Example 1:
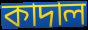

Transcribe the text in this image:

কাদাল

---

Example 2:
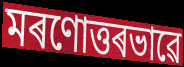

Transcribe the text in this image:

মৰণোত্তৰভাৱে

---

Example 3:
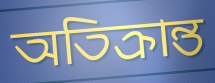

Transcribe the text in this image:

অতিক্ৰান্ত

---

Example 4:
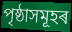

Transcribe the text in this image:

পৃষ্ঠাসমূহৰ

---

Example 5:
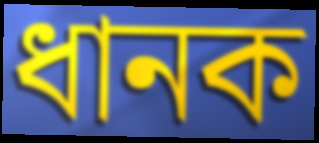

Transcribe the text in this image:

ধানক